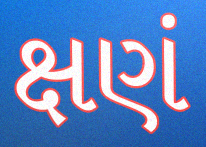
ક્ષણં